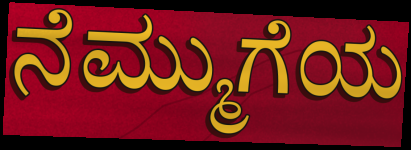
ನೆಮ್ಮುಗೆಯ